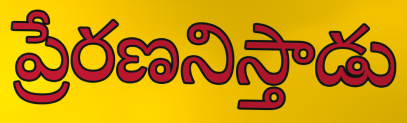
ప్రేరణనిస్తాడు